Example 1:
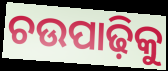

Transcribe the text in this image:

ଚଉପାଢ଼ିକୁ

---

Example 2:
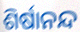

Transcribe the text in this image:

ଶିର୍ଷାନନ୍ଦ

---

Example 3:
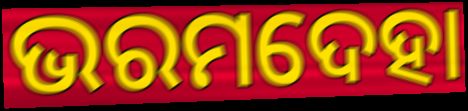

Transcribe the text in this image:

ଭରମଦେହା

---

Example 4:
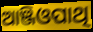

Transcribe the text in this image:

ଆଞ୍ଜିଓପାଥି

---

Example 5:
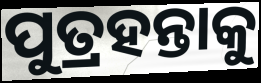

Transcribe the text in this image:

ପୁତ୍ରହନ୍ତାକୁ